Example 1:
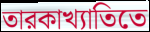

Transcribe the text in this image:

তারকাখ্যাতিতে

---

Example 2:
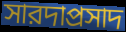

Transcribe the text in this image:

সারদাপ্রসাদ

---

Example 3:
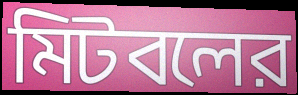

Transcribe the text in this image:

মিটবলের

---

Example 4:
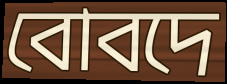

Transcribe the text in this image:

বোবদে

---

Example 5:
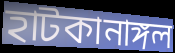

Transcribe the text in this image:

হাটকানাঙ্গল